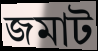
জমাট